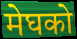
मेघको